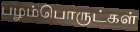
பழம்பொருட்கள்